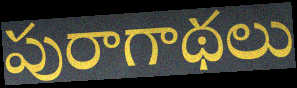
పురాగాథలు